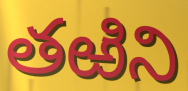
తఱిని